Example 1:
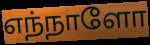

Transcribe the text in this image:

எந்நாளோ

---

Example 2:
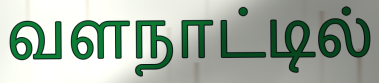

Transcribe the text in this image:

வளநாட்டில்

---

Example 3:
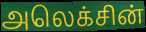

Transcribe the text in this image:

அலெக்சின்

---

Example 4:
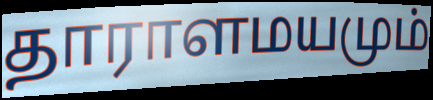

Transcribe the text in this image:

தாராளமயமும்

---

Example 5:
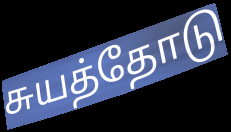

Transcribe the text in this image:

சுயத்தோடு